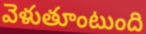
వెళుతూంటుంది